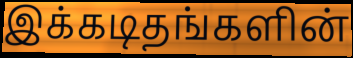
இக்கடிதங்களின்